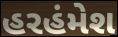
હરહંમેશ